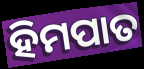
ହିମପାତ